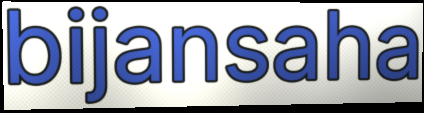
bijansaha